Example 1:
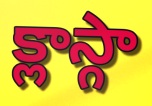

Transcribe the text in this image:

క్లాస్గా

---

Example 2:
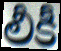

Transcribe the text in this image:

లీకీ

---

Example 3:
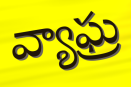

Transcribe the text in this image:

వ్యాఘ్ర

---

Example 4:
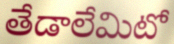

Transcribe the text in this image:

తేడాలేమిటో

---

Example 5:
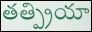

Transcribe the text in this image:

తత్ప్రియా